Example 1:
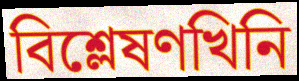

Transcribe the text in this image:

বিশ্লেষণখিনি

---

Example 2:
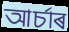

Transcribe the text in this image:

আৰ্চাৰ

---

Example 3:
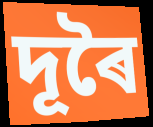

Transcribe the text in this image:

দূৰৈ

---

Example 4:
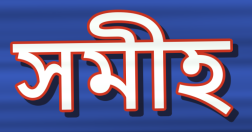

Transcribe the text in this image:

সমীহ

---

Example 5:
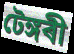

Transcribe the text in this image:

টেঙ্গৰী